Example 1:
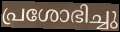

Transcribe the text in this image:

പ്രശോഭിച്ചു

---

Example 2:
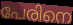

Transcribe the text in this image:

പേരിനെ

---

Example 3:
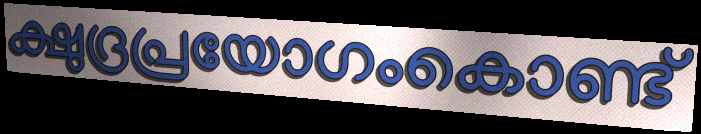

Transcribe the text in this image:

ക്ഷുദ്രപ്രയോഗംകൊണ്ട്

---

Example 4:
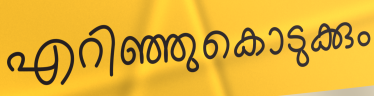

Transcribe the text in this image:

എറിഞ്ഞുകൊടുക്കും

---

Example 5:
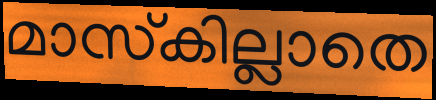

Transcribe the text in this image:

മാസ്‌കില്ലാതെ